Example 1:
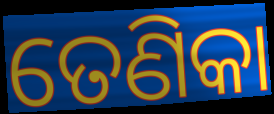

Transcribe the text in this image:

ତେଣିକା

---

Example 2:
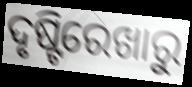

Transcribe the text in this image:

ଦୃଷ୍ଟିରେଖାରୁ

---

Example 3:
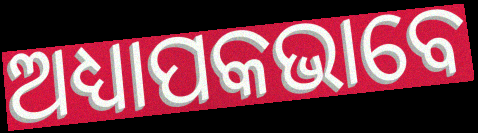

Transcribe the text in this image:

ଅଧ୍ୟାପକଭାବେ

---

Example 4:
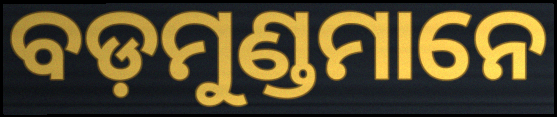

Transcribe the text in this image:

ବଡ଼ମୁଣ୍ଡମାନେ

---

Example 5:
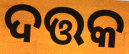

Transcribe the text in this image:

ଦତ୍ତକ